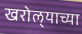
खरोल्याच्या